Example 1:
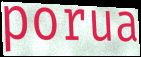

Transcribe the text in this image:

porua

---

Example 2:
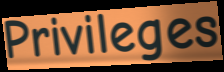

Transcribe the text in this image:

Privileges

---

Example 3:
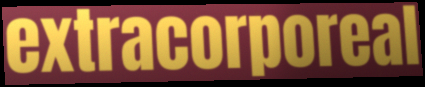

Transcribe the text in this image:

extracorporeal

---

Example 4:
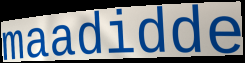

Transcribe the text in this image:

maadidde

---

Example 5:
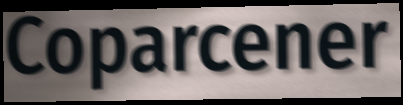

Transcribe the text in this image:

Coparcener